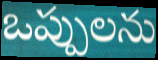
ఒప్పులను